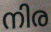
നിര